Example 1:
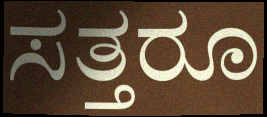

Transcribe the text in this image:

ಸತ್ತರೂ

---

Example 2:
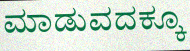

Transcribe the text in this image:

ಮಾಡುವದಕ್ಕೂ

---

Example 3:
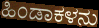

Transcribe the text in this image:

ಹಿಂಡಾಕಳನು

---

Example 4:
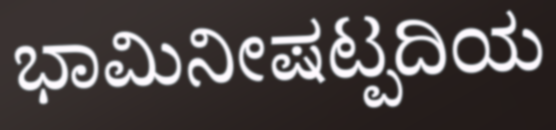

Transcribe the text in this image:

ಭಾಮಿನೀಷಟ್ಪದಿಯ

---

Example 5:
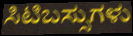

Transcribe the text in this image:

ಸಿಟಿಬಸ್ಸುಗಳು